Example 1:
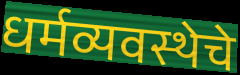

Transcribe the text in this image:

धर्मव्यवस्थेचे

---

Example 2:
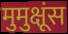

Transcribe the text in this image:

मुमुक्षूंस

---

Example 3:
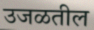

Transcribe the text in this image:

उजळतील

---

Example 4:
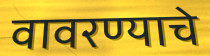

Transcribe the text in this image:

वावरण्याचे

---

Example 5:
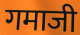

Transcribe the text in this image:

गमाजी